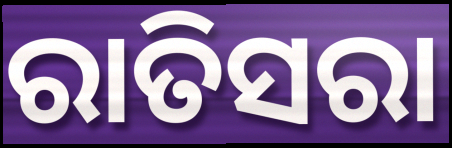
ରାତିସରା